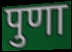
पुणा